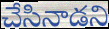
చేసినాడని